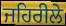
ਜਹਿਰੀਲੇ